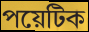
পয়েটিক